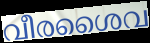
വീരശൈവ